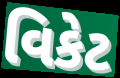
વિકેટ